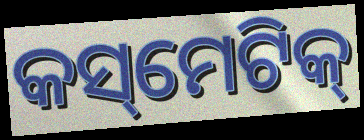
କସ୍‌ମେଟିକ୍